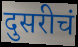
दुसरीचं